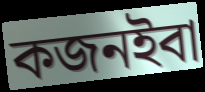
কজনইবা